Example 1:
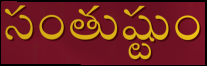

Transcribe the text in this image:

సంతుష్టుం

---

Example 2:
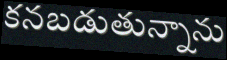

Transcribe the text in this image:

కనబడుతున్నాను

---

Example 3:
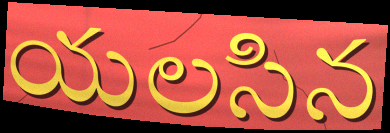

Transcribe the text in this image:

యలసిన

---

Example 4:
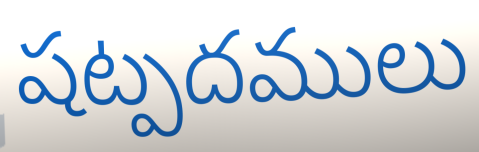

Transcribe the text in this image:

షట్పదములు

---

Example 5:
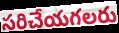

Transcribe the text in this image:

సరిచేయగలరు